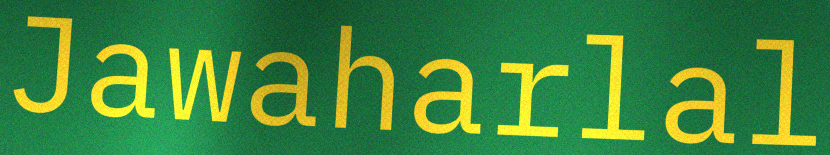
Jawaharlal